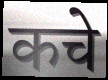
कचे